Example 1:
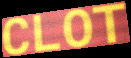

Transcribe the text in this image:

CLOT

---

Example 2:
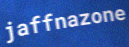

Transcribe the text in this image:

jaffnazone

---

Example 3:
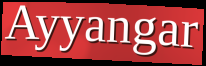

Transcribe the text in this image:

Ayyangar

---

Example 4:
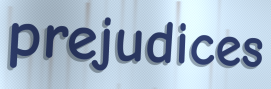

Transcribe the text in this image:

prejudices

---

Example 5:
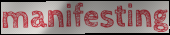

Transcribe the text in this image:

manifesting